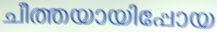
ചീത്തയായിപ്പോയ